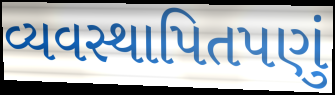
વ્યવસ્થાપિતપણું